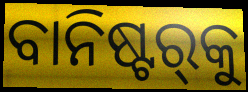
ବାନିଷ୍ଟର୍‍କୁ